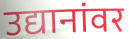
उद्यानांवर